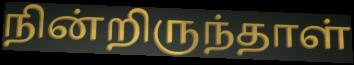
நின்றிருந்தாள்